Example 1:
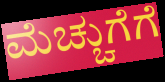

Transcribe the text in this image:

ಮೆಚ್ಚುಗೆಗೆ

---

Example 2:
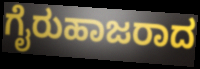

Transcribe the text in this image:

ಗೈರುಹಾಜರಾದ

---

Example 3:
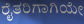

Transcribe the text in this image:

ರೈತರಿಗಾಗಿಯೇ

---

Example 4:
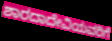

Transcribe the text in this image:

ಶಾರದಾದೇವಿಯವರಿಗೆ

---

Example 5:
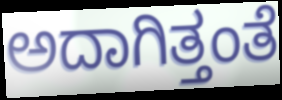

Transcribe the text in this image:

ಅದಾಗಿತ್ತಂತೆ